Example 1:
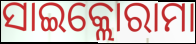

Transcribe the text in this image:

ସାଇକ୍ଲୋରାମା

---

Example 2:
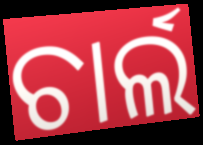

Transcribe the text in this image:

ଚାର୍ଲ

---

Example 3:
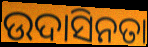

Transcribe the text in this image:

ଉଦାସିନତା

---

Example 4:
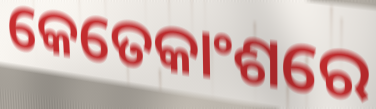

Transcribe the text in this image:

କେତେକାଂଶରେ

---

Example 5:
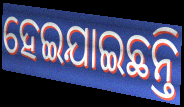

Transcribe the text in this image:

ହେଇଯାଇଛନ୍ତି